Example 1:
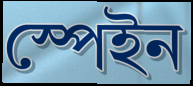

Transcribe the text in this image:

স্পেইন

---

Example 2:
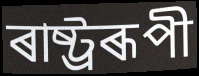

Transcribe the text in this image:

ৰাষ্ট্ৰৰূপী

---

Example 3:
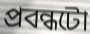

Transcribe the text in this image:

প্ৰবন্ধটো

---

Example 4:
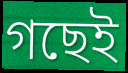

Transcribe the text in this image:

গছেই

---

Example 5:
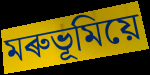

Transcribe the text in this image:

মৰুভূমিয়ে